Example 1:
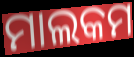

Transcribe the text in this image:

ମାଲକମ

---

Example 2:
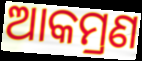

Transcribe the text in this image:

ଆକମ୍ରଣ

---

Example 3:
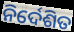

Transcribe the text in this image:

ନିର୍ଦେଶିତ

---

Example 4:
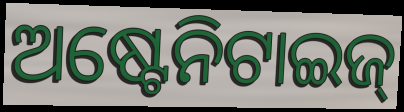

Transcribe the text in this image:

ଅଷ୍ଟେନିଟାଇଜ୍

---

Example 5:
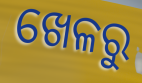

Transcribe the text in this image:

ଖେଳରୁ